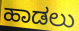
ಹಾಡಲು